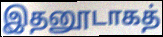
இதனூடாகத்